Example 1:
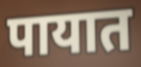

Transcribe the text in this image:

पायात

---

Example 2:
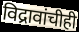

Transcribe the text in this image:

विद्रावांचीही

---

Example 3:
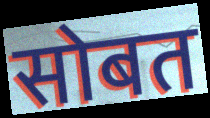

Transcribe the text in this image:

सोबत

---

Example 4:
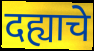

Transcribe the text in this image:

दह्याचे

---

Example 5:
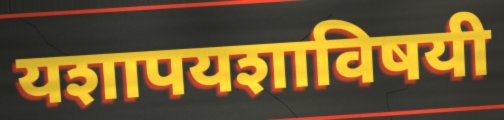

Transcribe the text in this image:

यशापयशाविषयी